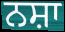
ਨਸ਼ਾ